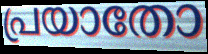
പ്രയാതോ